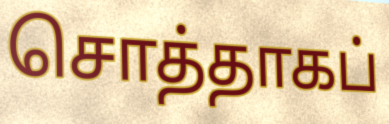
சொத்தாகப்